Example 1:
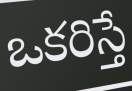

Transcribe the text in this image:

ఒకరిస్తే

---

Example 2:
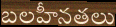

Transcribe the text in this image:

బలహీనతలు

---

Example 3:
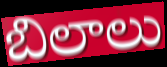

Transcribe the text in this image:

బిలాలు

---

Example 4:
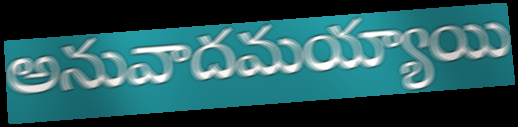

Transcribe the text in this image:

అనువాదమయ్యాయి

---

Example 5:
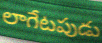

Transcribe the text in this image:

లాగేటపుడు